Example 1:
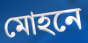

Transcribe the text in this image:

মোহনে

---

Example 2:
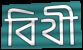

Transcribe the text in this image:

বিথী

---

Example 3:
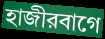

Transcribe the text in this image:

হাজীরবাগে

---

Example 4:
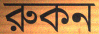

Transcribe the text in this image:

রুকন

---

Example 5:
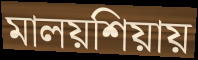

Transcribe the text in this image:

মালয়শিয়ায়